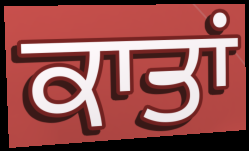
ਕਾਤਾਂ